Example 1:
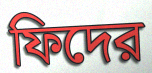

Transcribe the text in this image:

ফিদের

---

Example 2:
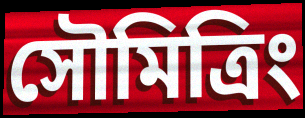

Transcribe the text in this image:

সৌমিত্রিং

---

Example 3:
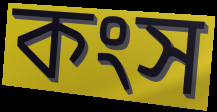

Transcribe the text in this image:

কংস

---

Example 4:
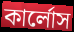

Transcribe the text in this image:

কার্লোস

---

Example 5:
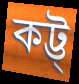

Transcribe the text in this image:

কট্ট্